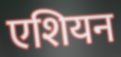
एशियन